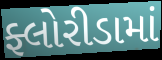
ફ્લોરીડામાં